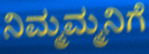
ನಿಮ್ಮಮ್ಮನಿಗೆ